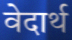
वेदार्थ